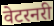
वेटरनरी